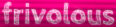
frivolous